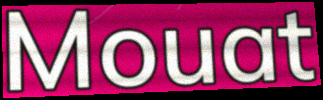
Mouat